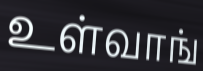
உள்வாங்